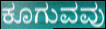
ಕೂಗುವವು